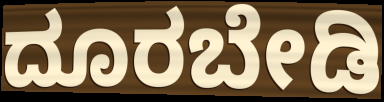
ದೂರಬೇಡಿ